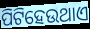
ପିଟିହେଉଥାଏ